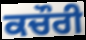
ਕਚੌਰੀ